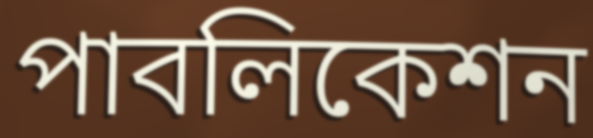
পাবলিকেশন